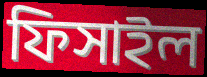
ফিসাইল